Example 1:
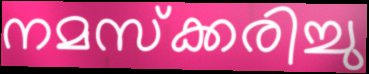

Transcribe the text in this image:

നമസ്ക്കരിച്ചു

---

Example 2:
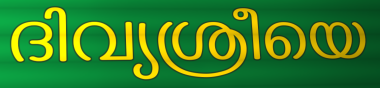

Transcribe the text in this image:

ദിവ്യശ്രീയെ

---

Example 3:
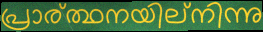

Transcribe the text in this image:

പ്രാര്ത്ഥനയില്നിന്നു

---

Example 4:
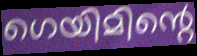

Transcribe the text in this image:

ഗെയിമിന്റെ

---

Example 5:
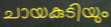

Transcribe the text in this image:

ചായകുടിയും